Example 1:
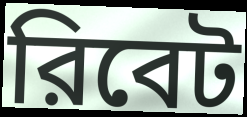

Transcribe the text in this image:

রিবেট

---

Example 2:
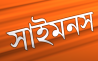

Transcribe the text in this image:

সাইমনস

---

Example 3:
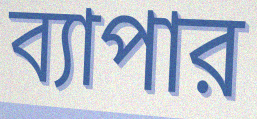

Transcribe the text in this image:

ব্যাপার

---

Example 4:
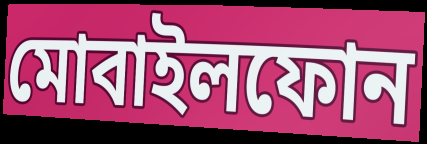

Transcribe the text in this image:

মোবাইলফোন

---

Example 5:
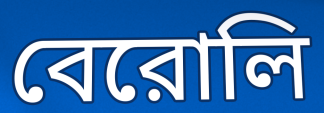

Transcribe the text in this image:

বেরোলি